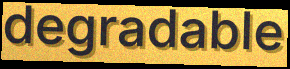
degradable